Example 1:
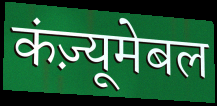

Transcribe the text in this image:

कंज़्यूमेबल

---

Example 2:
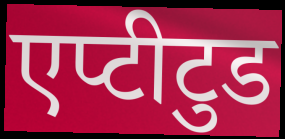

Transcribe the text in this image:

एप्टीटुड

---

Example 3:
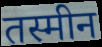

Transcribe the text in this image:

तस्मीन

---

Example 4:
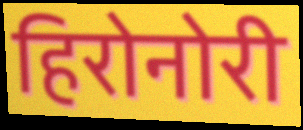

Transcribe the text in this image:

हिरोनोरी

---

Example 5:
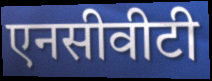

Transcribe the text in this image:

एनसीवीटी